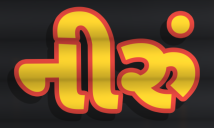
નીરું